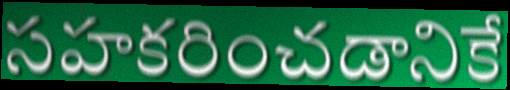
సహకరించడానికే